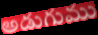
అడుగుము